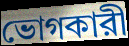
ভোগকারী